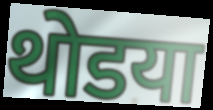
थोडया